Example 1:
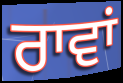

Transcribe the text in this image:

ਰਾਵਾਂ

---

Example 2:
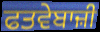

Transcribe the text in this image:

ਫਤਵੇਬਾਜ਼ੀ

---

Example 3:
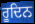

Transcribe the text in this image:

ਰੂਦਿਨ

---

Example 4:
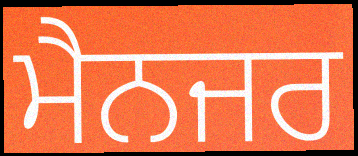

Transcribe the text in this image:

ਮੈਨਜਰ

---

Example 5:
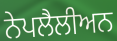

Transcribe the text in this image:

ਨੇਪਲੈਲੀਅਨ